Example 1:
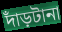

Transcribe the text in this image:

দাঁড়টানা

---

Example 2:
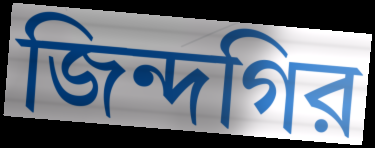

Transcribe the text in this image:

জিন্দগির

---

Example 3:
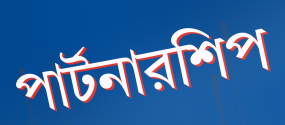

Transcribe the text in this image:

পার্টনারশিপ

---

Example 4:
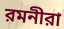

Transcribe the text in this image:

রমনীরা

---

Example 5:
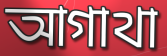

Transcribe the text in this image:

আগাথা